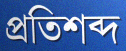
প্ৰতিশব্দ